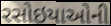
રસોઇયાઓની